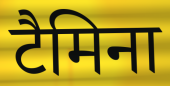
टैमिना